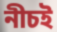
নীচই